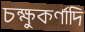
চক্ষুকর্ণাদি